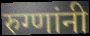
रुग्णांनी